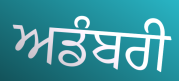
ਅਡੰਬਰੀ